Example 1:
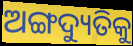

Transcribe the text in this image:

ଅଙ୍ଗଦ୍ୟୁତିକୁ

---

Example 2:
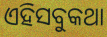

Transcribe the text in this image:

ଏହିସବୁକଥା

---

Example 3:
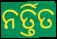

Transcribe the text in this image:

ନର୍ତ୍ତିତ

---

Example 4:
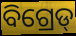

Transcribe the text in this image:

ବିଗ୍ରେଡ୍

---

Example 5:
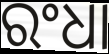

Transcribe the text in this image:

ରଂଧା